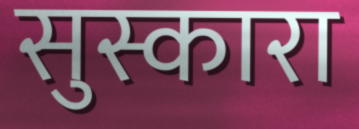
सुस्कारा